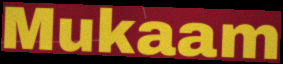
Mukaam